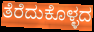
ತೆರೆದುಕೊಳ್ಳದ